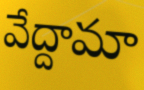
వేద్దామా